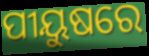
ପୀୟୁଷରେ